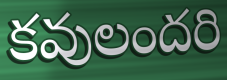
కవులందరి